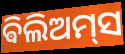
ଵିଲିଅମ୍‌ସ